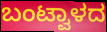
ಬಂಟ್ವಾಳದ